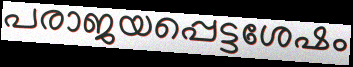
പരാജയപ്പെട്ടശേഷം